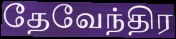
தேவேந்திர